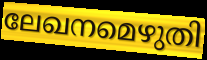
ലേഖനമെഴുതി